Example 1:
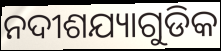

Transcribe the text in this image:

ନଦୀଶଯ୍ୟାଗୁଡିକ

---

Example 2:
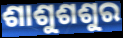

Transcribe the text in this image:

ଶାଶୁଶଶୁର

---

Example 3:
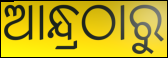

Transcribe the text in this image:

ଆନ୍ଧ୍ରଠାରୁ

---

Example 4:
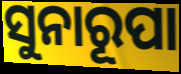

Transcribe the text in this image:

ସୁନାରୂପା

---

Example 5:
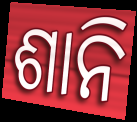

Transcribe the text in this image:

ଶାନି